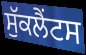
ਸੁੱਕਲੈਂਟਸ